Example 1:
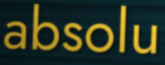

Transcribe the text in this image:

absolu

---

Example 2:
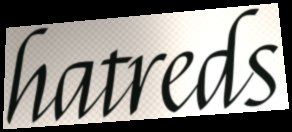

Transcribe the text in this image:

hatreds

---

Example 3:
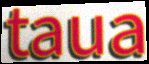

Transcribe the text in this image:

taua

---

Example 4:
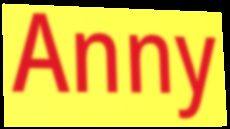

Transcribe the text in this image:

Anny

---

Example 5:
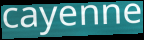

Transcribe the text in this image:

cayenne